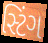
સ્ટિંગ